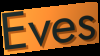
Eves